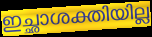
ഇച്ഛാശക്തിയില്ല